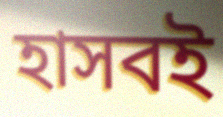
হাসবই